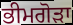
ਭੀਮਗੋੜਾ